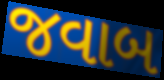
જવાબ